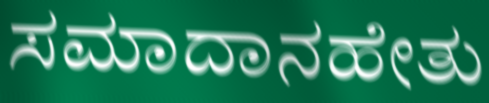
ಸಮಾದಾನಹೇತು